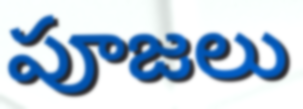
పూజలు